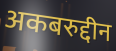
अकबरुद्दीन